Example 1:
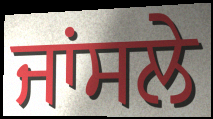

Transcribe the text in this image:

ਜਾਂਸਲੇ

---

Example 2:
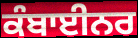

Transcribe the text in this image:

ਕੰਬਾਈਨਰ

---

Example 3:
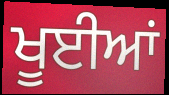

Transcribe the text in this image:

ਖੂਈਆਂ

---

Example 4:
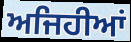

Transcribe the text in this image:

ਅਜਿਹੀਆਂ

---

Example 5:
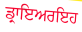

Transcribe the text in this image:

ਡ੍ਰਾਇਅਰਇਹ